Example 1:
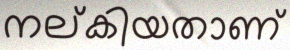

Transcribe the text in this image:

നല്കിയതാണ്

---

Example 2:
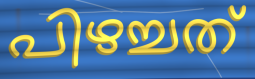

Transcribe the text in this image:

പിഴച്ചത്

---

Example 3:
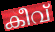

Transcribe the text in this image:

കീവ്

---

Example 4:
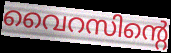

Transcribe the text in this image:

വൈറസിന്റെ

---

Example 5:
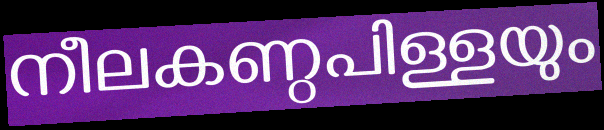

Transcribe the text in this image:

നീലകണ്ഠപിള്ളയും